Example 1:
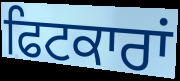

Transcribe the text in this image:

ਫਿਟਕਾਰਾਂ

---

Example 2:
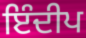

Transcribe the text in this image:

ਇੰਦੀਪ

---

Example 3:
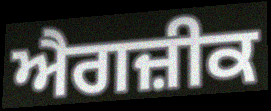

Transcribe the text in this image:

ਐਗਜ਼ੀਕ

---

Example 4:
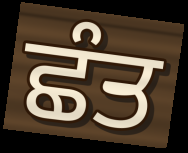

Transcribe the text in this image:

ਛੰਤ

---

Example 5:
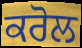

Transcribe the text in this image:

ਕਰੋਲ